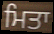
ਮਿਤਾ